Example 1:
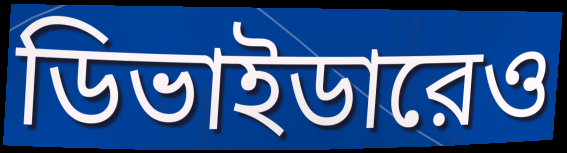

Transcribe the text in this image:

ডিভাইডারেও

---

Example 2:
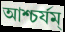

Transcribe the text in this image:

আশ্চর্যম্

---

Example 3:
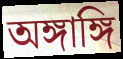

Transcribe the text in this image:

অঙ্গাঙ্গি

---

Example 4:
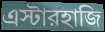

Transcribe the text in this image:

এস্টারহাজি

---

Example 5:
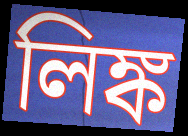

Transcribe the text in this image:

লিঙ্ক